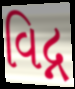
વિદ્ન